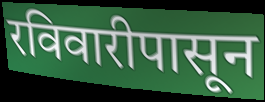
रविवारीपासून